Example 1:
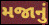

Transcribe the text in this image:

મજાનું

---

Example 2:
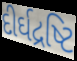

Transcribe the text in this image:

દીર્ઘદ્રષ્ટિ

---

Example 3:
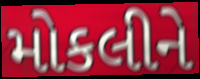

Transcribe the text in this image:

મોકલીને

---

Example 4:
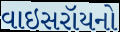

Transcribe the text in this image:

વાઇસરૉયનો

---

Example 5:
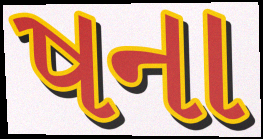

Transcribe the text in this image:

ષના